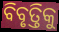
ବିବୃତ୍ତିକୁ